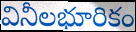
వినీలభూరికం